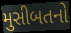
મુસીબતનો